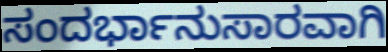
ಸಂದರ್ಭಾನುಸಾರವಾಗಿ